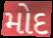
મોદ